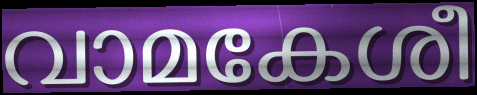
വാമകേശീ